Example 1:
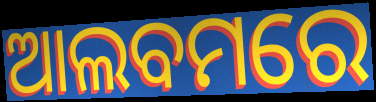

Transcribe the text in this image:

ଆଲବମରେ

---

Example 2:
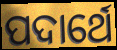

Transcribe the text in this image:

ପଦାର୍ଥେ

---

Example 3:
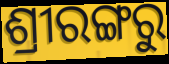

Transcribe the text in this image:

ଶ୍ରୀରଙ୍ଗରୁ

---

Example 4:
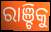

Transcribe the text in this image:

ରାଞ୍ଚିକୁ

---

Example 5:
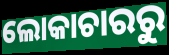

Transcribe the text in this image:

ଲୋକାଚାରରୁ